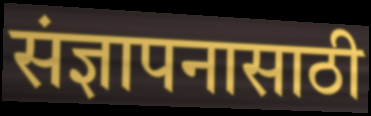
संज्ञापनासाठी